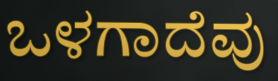
ಒಳಗಾದೆವು